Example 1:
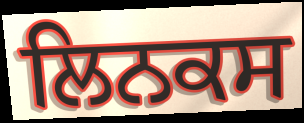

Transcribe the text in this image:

ਲਿਨਕਸ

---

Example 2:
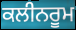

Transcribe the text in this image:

ਕਲੀਨਰੂਮ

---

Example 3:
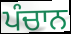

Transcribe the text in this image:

ਪੰਚਾਨ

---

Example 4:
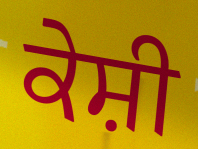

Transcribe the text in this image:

ਕੇਸ਼ੀ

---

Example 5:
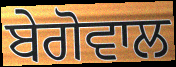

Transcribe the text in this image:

ਬੇਗੋਵਾਲ